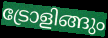
ട്രോളിങ്ങും